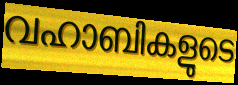
വഹാബികളുടെ